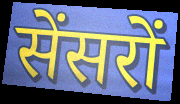
सेंसरों